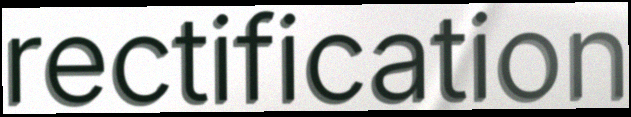
rectification